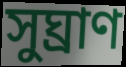
সুঘ্রাণ